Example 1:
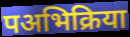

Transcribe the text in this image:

पअभिक्रिया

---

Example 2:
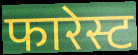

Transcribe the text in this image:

फारेस्ट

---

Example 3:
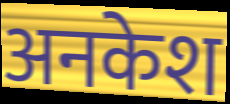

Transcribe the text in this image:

अनकेश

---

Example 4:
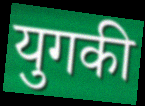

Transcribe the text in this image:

युगकी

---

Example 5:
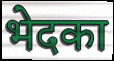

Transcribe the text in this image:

भेदका